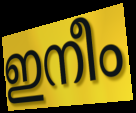
ഇനീം